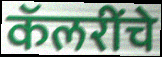
कॅलरींचे